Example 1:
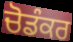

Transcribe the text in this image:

ਚੋਡੰਕਰ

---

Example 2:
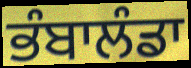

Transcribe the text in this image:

ਭੰਬਾਲੰਡਾ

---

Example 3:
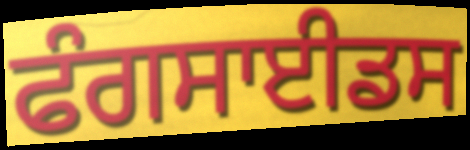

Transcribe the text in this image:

ਫੰਗਸਾਈਡਸ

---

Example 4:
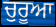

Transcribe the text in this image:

ਚੁਰੂਆ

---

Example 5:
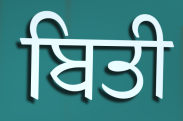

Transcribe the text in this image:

ਬਿਤੀ